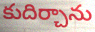
కుదిర్చాను